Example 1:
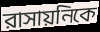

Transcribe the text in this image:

রাসায়নিকে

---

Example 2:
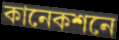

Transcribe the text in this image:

কানেকশনে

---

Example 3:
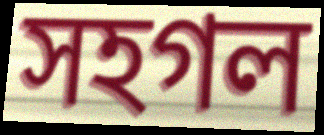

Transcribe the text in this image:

সহগল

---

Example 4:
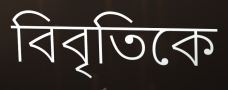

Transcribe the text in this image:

বিবৃতিকে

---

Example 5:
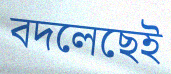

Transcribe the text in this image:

বদলেছেই